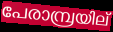
പേരാമ്പ്രയില്